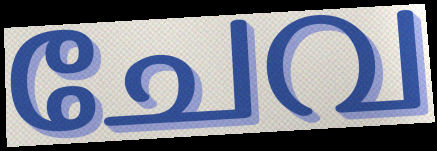
ചേവ